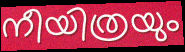
നീയിത്രയും